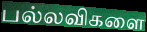
பல்லவிகளை